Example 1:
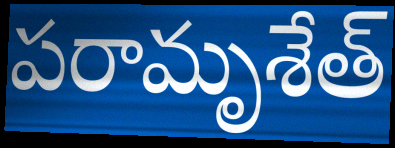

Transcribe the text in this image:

పరామృశేత్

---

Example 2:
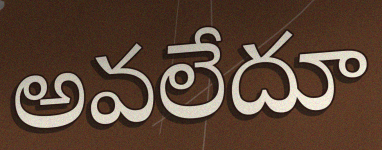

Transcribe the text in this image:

అవలేదూ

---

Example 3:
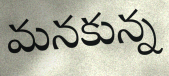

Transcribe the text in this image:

మనకున్న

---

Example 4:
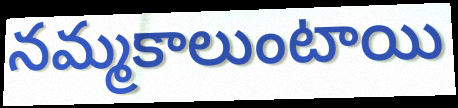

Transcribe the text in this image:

నమ్మకాలుంటాయి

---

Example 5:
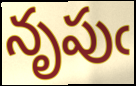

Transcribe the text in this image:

నృపుఁ